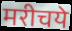
मरीचये